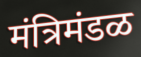
मंत्रिमंडळ